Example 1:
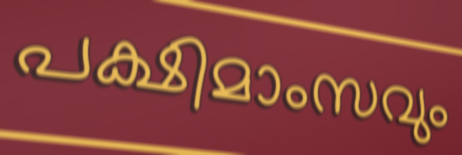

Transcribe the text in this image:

പക്ഷിമാംസവും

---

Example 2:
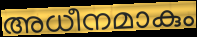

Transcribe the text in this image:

അധീനമാകും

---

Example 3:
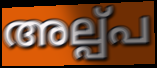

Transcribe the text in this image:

അല്പ്പ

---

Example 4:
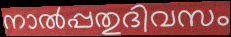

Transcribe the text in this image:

നാൽപ്പതുദിവസം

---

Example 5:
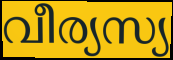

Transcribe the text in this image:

വീര്യസ്യ